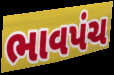
ભાવપંચ